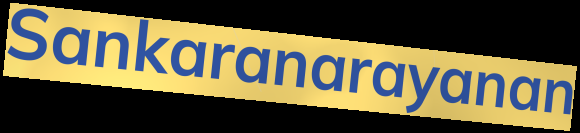
Sankaranarayanan